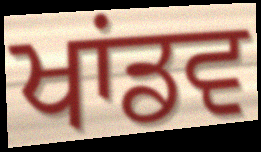
ਖਾਂਡਵ